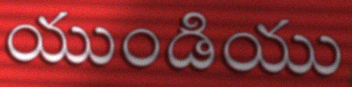
యుండియు